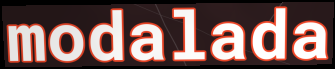
modalada